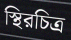
স্থিরচিত্র